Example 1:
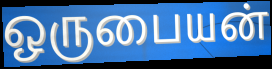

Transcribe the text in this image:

ஒருபையன்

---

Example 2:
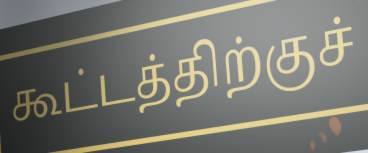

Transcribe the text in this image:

கூட்டத்திற்குச்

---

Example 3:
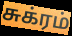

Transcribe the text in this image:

சுக்ரம்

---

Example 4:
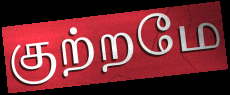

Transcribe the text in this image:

குற்றமே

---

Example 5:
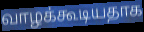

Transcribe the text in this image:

வாழக்கூடியதாக